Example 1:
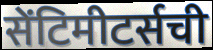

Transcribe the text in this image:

सेंटिमीटर्सची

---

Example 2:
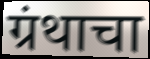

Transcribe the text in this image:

ग्रंथाचा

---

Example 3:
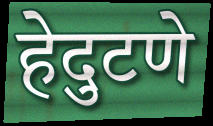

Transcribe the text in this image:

हेदुटणे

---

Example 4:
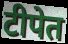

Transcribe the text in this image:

टीपेत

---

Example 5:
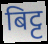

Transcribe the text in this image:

बिट्ट